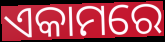
ଏକାମରେ